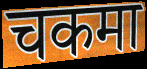
चकमा